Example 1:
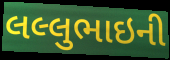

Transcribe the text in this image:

લલ્લુભાઇની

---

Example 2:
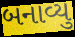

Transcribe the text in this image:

બનાવ્યુ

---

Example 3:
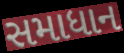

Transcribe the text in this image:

સમાધાન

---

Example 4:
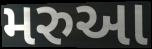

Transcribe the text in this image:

મરુઆ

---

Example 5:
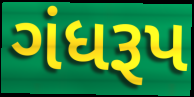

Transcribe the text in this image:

ગંધરૂપ